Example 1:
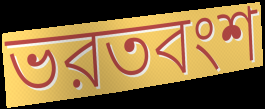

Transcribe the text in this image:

ভরতবংশ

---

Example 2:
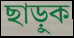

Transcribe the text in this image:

ছাড়ুক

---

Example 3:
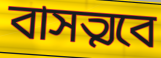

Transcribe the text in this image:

বাসত্মবে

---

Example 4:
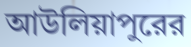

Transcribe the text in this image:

আউলিয়াপুরের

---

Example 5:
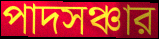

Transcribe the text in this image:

পাদসঞ্চার